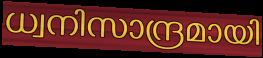
ധ്വനിസാന്ദ്രമായി